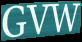
GVW